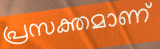
പ്രസക്തമാണ്